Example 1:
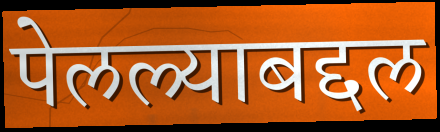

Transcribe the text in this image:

पेलल्याबद्दल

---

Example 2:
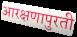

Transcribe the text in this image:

आरक्षणापुरती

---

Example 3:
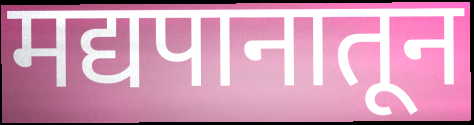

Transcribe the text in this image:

मद्यपानातून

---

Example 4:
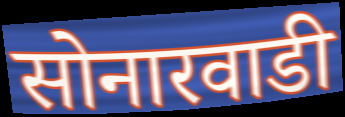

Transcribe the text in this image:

सोनारवाडी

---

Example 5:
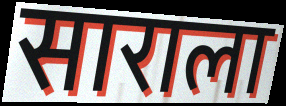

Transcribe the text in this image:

साराला